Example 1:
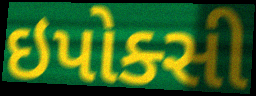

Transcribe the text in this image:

ઇપોક્સી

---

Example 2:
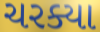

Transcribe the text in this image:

ચરક્યા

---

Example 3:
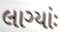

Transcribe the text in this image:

લાગ્યાંઃ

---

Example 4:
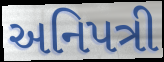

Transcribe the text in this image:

અનિપત્રી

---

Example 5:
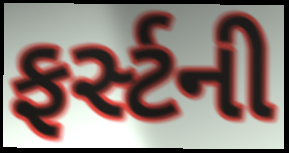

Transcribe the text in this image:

ફર્સ્ટની